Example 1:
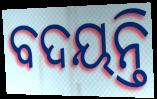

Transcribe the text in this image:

ବଦୟନ୍ତି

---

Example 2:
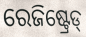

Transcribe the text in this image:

ରେଜିଷ୍ଟ୍ରେଡ୍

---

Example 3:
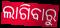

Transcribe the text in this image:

ଲାଗିବାରୁ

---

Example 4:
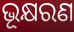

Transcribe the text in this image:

ଭୂକ୍ଷରଣ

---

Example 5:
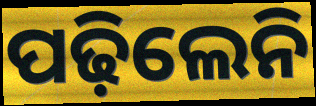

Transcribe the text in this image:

ପଢ଼ିଲେନି